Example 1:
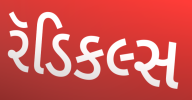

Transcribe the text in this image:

રૅડિકલ્સ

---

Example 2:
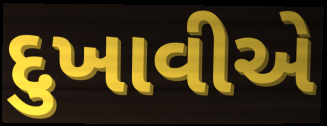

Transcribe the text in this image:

દુખાવીએ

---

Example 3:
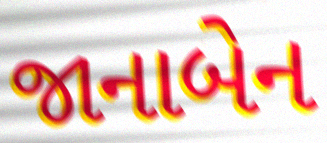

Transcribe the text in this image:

જાનાબેન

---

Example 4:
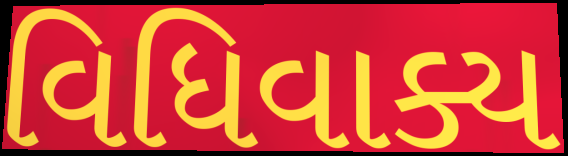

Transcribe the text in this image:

વિધિવાક્ય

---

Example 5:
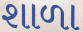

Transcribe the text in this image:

શાળા